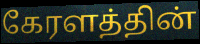
கேரளத்தின்